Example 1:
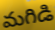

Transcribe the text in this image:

మగిడి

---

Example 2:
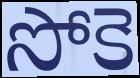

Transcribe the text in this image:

సోకె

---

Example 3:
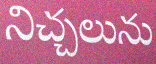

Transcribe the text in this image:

నిచ్చలును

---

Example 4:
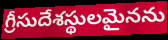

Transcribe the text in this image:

గ్రీసుదేశస్థులమైనను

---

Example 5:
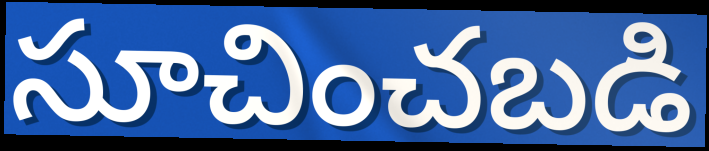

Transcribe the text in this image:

సూచించబడి